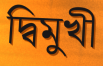
দ্বিমুখী